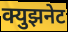
क्युझनेट